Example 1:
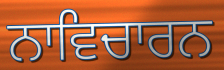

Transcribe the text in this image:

ਨਾਵਿਚਾਰਨ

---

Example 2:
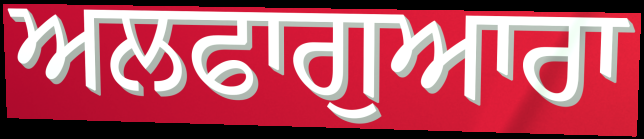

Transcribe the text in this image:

ਅਲਫਾਗੁਆਰਾ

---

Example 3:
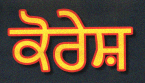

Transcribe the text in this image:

ਕੋਰੇਸ਼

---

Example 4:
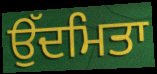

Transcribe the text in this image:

ਉੱਦਮਿਤਾ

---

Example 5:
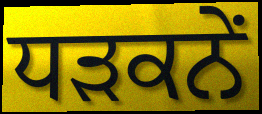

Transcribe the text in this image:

ਧੜਕਨੇਂ